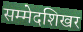
सम्मेदशिखर